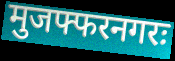
मुजफ्फरनगरः